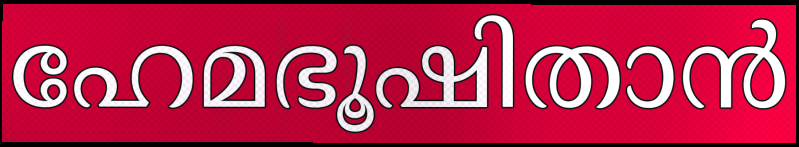
ഹേമഭൂഷിതാൻ